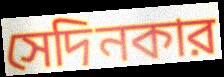
সেদিনকার